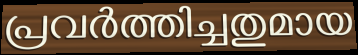
പ്രവർത്തിച്ചതുമായ